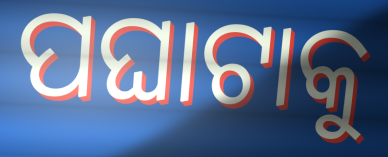
ପଘାଟାକୁ